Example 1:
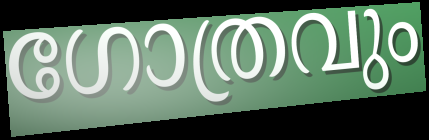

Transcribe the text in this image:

ഗോത്രവും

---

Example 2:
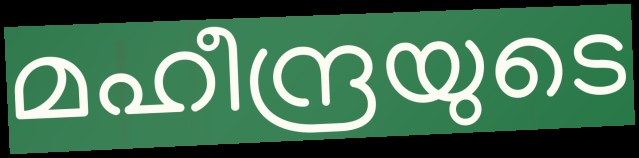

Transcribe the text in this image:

മഹീന്ദ്രയുടെ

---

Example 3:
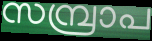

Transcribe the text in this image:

സമ്പ്രാപ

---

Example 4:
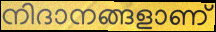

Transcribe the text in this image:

നിദാനങ്ങളാണ്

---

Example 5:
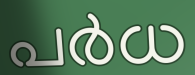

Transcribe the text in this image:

പർധ